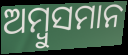
ଅମ୍ବୁସମାନ